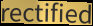
rectified